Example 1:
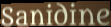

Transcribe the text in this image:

Sanidine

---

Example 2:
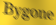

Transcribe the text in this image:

Bygone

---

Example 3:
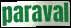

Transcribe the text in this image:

paraval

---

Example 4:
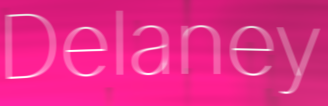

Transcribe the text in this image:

Delaney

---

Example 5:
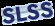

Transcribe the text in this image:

SLSS